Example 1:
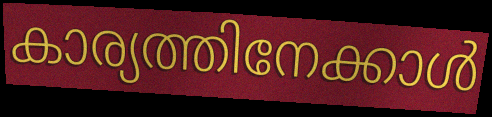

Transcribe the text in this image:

കാര്യത്തിനേക്കാൾ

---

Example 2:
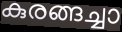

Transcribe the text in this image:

കുരങ്ങച്ചാ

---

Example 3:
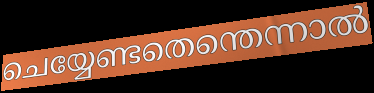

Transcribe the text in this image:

ചെയ്യേണ്ടതെന്തെന്നാൽ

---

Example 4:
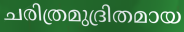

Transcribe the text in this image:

ചരിത്രമുദ്രിതമായ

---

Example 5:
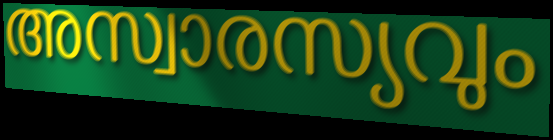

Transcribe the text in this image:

അസ്വാരസ്യവും